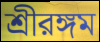
শ্রীরঙ্গম